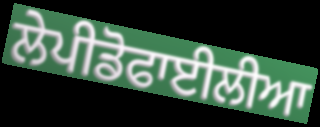
ਲੇਪੀਡੋਫਾਈਲੀਆ